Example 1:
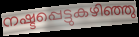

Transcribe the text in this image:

നഷ്ടപ്പെട്ടുകഴിഞ്ഞു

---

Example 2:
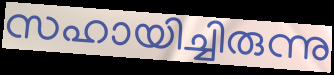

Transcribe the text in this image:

സഹായിച്ചിരുന്നു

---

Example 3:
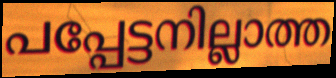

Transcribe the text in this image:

പപ്പേട്ടനില്ലാത്ത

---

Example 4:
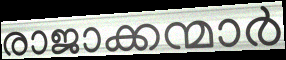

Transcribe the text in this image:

രാജാക്കന്മാർ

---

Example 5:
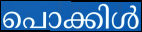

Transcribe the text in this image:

പൊക്കിൾ